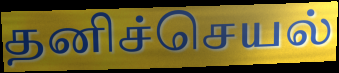
தனிச்செயல்